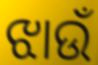
ଝାଉଁ